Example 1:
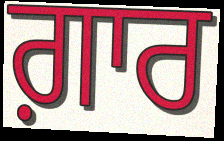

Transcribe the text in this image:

ਗ਼ਾਰ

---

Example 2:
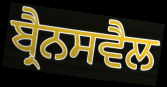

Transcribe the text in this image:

ਬ੍ਰੈਨਸਵੈਲ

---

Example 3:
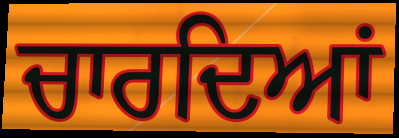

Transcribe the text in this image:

ਚਾਰਦਿਆਂ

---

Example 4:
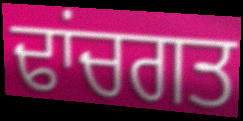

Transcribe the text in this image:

ਢਾਂਚਗਤ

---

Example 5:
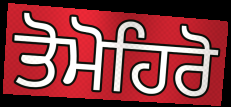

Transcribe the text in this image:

ਤੋਮੋਹਿਰੋ